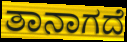
ತಾನಾಗದೆ